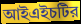
আইএইচটির